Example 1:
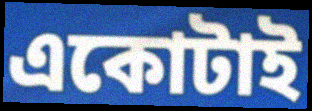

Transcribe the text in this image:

একোটাই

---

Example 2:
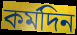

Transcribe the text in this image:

কৰ্মদিন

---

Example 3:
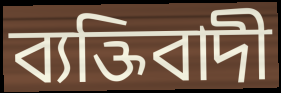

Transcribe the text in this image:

ব্যক্তিবাদী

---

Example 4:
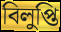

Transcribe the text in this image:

বিলুপ্তি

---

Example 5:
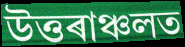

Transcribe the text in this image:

উত্তৰাঞ্চলত